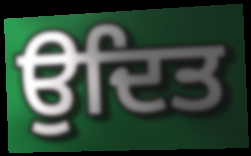
ਉਦਿਤ